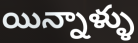
యిన్నాళ్ళు